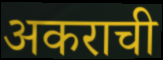
अकराची